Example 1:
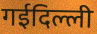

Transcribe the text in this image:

गईदिल्ली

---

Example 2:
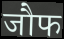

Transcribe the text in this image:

जौफ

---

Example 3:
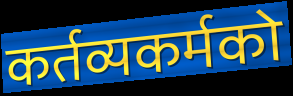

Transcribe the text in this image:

कर्तव्यकर्मको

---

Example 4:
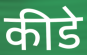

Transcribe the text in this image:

कीडे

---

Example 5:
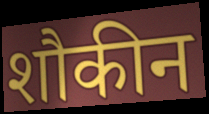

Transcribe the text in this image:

शौकीन